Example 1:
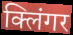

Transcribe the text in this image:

क्लिंगर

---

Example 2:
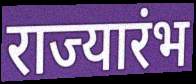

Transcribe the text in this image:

राज्यारंभ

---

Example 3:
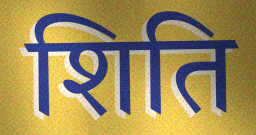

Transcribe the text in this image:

शिति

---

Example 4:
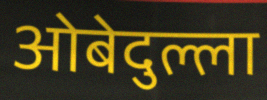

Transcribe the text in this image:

ओबेदुल्ला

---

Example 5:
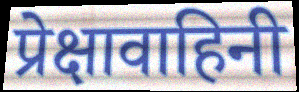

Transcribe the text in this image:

प्रेक्षावाहिनी